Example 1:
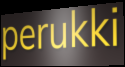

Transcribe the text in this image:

perukki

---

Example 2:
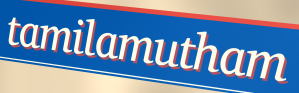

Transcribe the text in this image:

tamilamutham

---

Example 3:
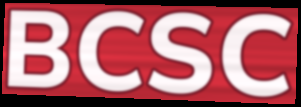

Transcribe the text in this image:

BCSC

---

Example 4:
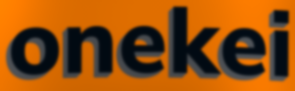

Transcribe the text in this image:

onekei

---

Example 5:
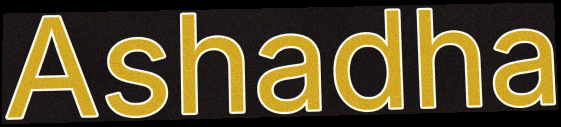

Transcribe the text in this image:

Ashadha